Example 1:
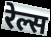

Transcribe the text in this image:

रेल्स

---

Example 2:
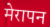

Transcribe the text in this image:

मेरापन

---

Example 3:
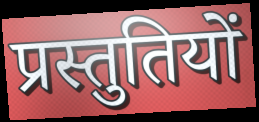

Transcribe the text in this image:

प्रस्तुतियों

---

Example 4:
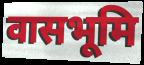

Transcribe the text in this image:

वासभूमि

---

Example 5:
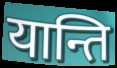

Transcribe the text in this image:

यान्ति